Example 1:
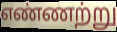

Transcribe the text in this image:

எண்ணற்று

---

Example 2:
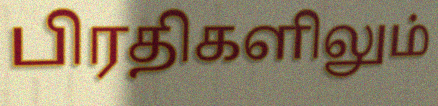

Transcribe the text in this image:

பிரதிகளிலும்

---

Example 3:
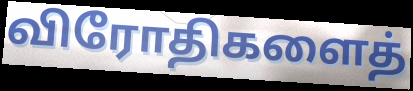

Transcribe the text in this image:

விரோதிகளைத்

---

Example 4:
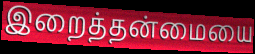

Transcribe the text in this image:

இறைத்தன்மையை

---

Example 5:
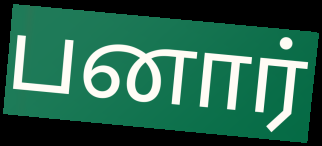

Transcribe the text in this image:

பனார்